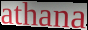
athana